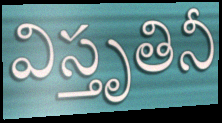
విస్తృతినీ